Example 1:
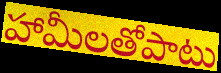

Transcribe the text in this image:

హామీలతోపాటు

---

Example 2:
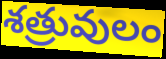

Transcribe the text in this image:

శత్రువులం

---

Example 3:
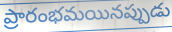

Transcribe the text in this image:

ప్రారంభమయినప్పుడు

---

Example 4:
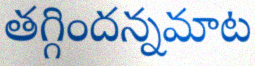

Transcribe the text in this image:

తగ్గిందన్నమాట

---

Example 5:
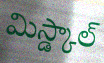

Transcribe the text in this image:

మిస్డ్కాల్